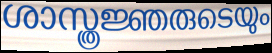
ശാസ്ത്രജ്ഞരുടെയും